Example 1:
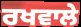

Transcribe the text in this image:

ਰਖਵਾਲੇ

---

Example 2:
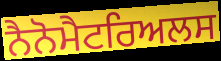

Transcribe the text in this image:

ਨੈਨੋਮੈਟਰਿਅਲਸ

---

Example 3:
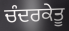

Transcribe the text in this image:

ਚੰਦਰਕੇਤੂ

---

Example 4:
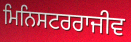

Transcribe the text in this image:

ਮਿਨਿਸਟਰਰਾਜੀਵ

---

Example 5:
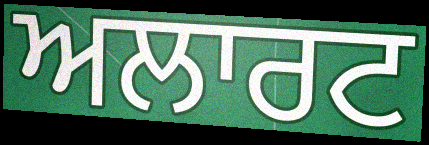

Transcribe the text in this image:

ਅਲਾਰਟ